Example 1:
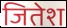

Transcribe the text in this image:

जितेश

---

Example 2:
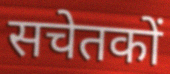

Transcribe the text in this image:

सचेतकों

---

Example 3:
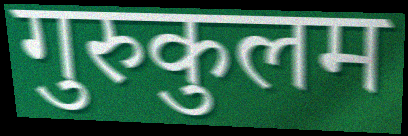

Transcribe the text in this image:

गुरुकुलम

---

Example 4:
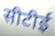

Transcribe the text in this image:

सीटीई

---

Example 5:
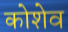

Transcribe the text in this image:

कोशेव